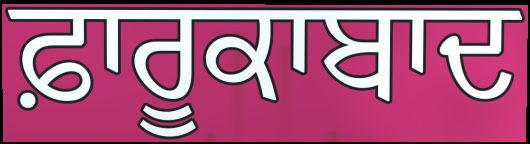
ਫ਼ਾਰੂਕਾਬਾਦ